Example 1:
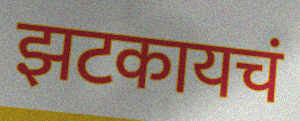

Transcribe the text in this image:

झटकायचं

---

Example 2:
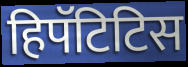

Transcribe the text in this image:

हिपॅटिटिस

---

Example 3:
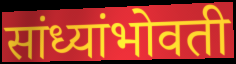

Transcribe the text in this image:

सांध्यांभोवती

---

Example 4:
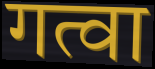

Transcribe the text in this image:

गत्वा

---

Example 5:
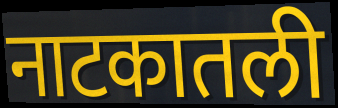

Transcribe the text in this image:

नाटकातली